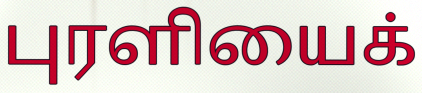
புரளியைக்